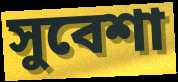
সুবেশা